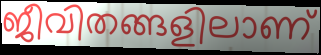
ജീവിതങ്ങളിലാണ്